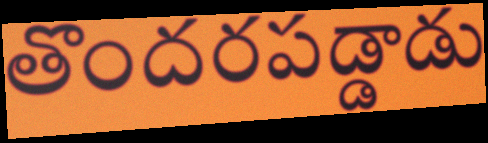
తొందరపడ్డాడు